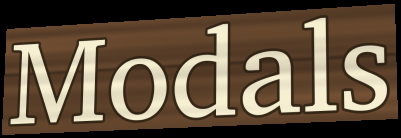
Modals